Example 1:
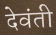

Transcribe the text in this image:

देवंती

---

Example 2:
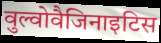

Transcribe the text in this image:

वुल्वोवैजिनाइटिस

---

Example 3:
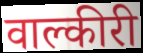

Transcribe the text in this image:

वाल्कीरी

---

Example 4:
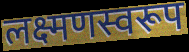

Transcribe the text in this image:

लक्ष्मणस्वरूप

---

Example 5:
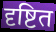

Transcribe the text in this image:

दृष्टित